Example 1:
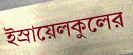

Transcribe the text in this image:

ইস্রায়েলকুলের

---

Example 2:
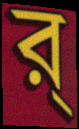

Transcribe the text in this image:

র্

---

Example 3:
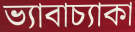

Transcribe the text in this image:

ভ্যাবাচ্যাকা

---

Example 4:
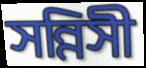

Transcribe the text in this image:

সন্নিসী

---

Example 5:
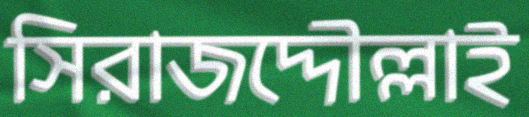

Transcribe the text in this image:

সিরাজদ্দৌল্লাই